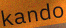
kando